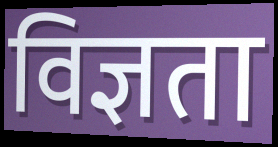
विज्ञता